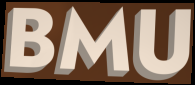
BMU